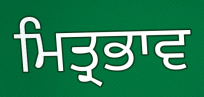
ਮਿਤ੍ਰਭਾਵ